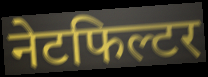
नेटफिल्टर